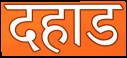
दहाड